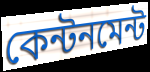
কেন্টনমেন্ট